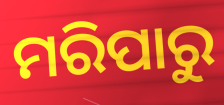
ମରିପାରୁ